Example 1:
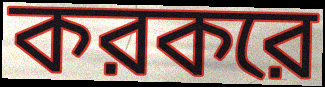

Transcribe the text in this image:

করকরে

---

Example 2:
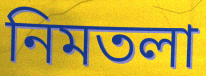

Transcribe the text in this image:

নিমতলা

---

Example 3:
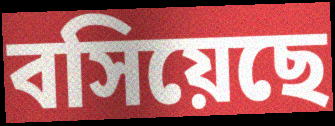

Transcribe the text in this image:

বসিয়েছে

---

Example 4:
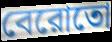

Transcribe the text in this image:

বেরোতো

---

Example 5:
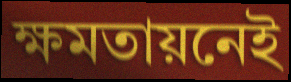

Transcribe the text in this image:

ক্ষমতায়নেই